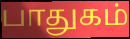
பாதுகம்